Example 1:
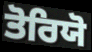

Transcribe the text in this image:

ਤੋਰਿਯੋ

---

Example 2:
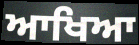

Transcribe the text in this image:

ਆਖਿਆ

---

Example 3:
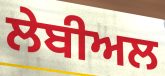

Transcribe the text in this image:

ਲੇਬੀਅਲ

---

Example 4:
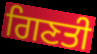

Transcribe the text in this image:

ਗਿਣਤੀ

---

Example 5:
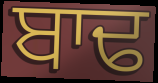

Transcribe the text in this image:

ਬਾਢ